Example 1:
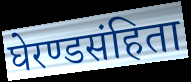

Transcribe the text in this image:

घेरण्डसंहिता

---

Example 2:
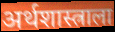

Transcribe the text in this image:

अर्थशास्त्राला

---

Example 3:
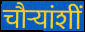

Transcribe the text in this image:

चौर्‍यांशीं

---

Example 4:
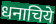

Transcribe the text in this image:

धनाचिये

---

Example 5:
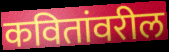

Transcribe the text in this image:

कवितांवरील